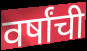
वर्षांची